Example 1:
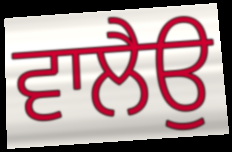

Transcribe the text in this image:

ਵਾਲੈਉ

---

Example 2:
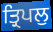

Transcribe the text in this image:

ਤ੍ਰਿਪਲੁ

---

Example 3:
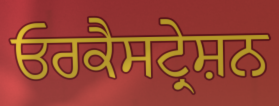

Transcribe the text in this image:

ਓਰਕੈਸਟ੍ਰੇਸ਼ਨ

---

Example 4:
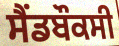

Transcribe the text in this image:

ਸੈਂਡਬੌਕਸੀ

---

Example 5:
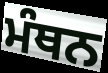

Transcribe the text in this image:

ਮੰਥਨ